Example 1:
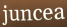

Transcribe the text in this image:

juncea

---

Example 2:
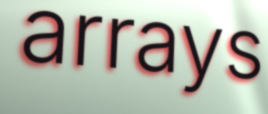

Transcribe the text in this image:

arrays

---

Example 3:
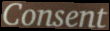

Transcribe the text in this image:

Consent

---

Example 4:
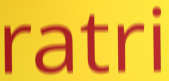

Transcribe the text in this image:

ratri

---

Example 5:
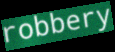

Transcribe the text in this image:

robbery